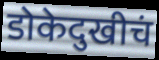
डोकेदुखीचं